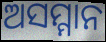
ଅସମ୍ମାନ